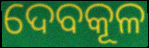
ଦେବକୂଳ